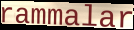
rammalar